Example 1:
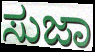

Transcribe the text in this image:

ಸುಜಾ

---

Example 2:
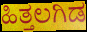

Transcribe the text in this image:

ಹಿತ್ತಲಗಿಡ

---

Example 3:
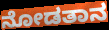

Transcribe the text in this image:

ನೋಡತಾನ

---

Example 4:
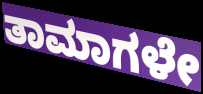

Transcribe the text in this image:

ತಾಮಾಗಳೇ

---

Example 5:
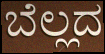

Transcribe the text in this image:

ಬೆಲ್ಲದ